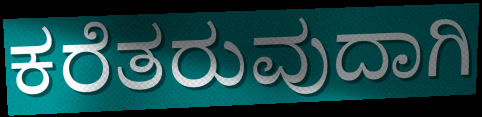
ಕರೆತರುವುದಾಗಿ